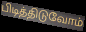
பிடித்திடுவோம்